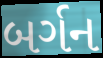
બર્ગન